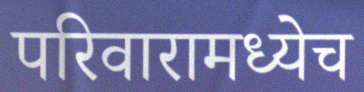
परिवारामध्येच